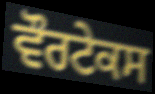
ਵੌਰਟੇਕਸ